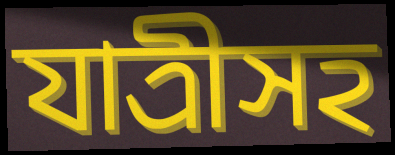
যাত্রীসহ